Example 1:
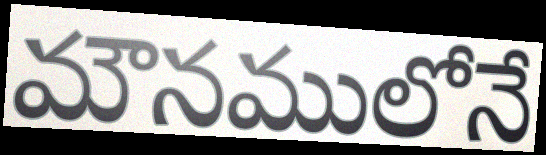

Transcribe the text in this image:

మౌనములోనే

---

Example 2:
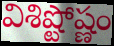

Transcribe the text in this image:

విశిష్టోష్ణం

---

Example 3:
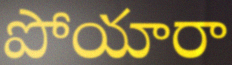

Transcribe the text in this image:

పోయారా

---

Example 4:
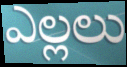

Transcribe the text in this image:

ఎల్లలు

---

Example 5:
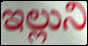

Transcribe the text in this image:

ఇల్లుని